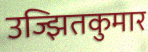
उज्झितकुमार